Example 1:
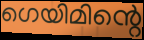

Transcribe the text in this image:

ഗെയിമിന്റെ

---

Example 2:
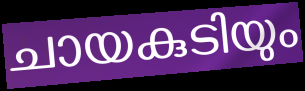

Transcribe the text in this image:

ചായകുടിയും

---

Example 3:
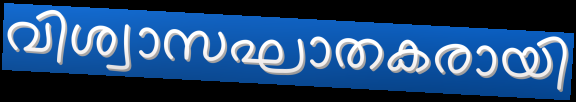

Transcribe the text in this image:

വിശ്വാസഘാതകരായി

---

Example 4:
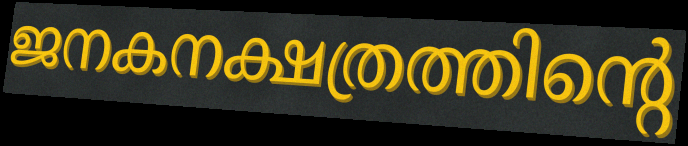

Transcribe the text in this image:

ജനകനക്ഷത്രത്തിന്റെ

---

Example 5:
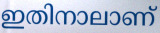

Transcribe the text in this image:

ഇതിനാലാണ്